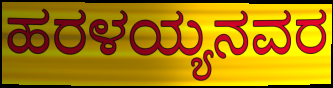
ಹರಳಯ್ಯನವರ